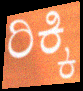
ರಿಕ್ಕಿ